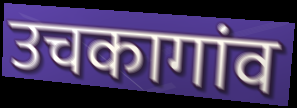
उचकागांव